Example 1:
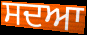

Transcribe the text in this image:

ਸਦਆ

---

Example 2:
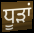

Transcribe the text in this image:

ਧੂੜਾਂ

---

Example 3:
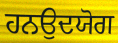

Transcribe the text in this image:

ਹਨਉਦਯੋਗ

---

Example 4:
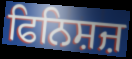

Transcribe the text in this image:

ਫਿਨਿਸ਼ਜ਼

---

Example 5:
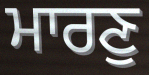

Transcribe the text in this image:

ਮਾਰਣੁ